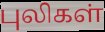
புலிகள்